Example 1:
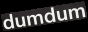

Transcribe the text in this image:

dumdum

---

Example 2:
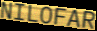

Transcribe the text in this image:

NILOFAR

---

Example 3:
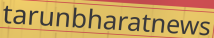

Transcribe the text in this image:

tarunbharatnews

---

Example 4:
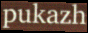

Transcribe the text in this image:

pukazh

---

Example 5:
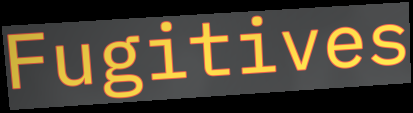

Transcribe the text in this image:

Fugitives